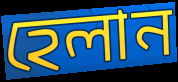
হেলান